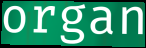
organ